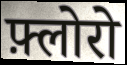
फ़्लोरो